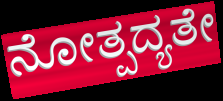
ನೋತ್ಪದ್ಯತೇ